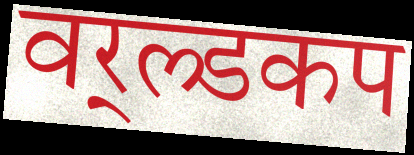
वर्ल्डकप